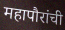
महापौरांची